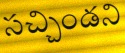
సచ్చిండని